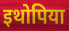
इथोपिया